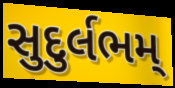
સુદુર્લભમ્